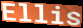
Ellis